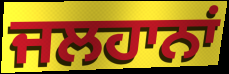
ਜਲਹਾਨਾਂ